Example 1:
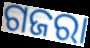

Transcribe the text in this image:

ଗଜରା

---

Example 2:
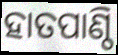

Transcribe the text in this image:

ହାତପାଣ୍ଠି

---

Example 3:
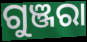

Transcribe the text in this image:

ଗୁଞ୍ଜରା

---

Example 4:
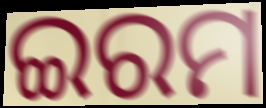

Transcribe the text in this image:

ଇରମ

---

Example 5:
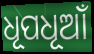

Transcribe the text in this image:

ଧୂପଧୂଆଁ